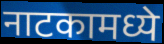
नाटकामध्ये